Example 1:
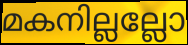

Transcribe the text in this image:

മകനില്ലല്ലോ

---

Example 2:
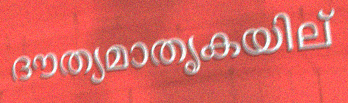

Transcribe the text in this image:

ദൗത്യമാതൃകയില്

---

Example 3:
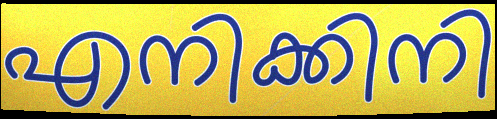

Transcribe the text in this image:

എനിക്കിനി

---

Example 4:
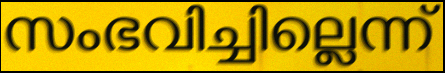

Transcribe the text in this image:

സംഭവിച്ചില്ലെന്ന്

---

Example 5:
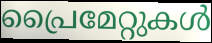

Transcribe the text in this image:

പ്രൈമേറ്റുകൾ